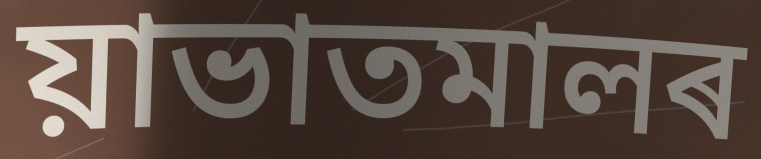
য়াভাতমালৰ